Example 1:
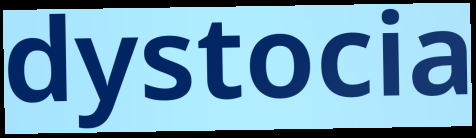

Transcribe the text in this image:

dystocia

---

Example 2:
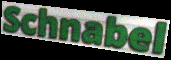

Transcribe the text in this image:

Schnabel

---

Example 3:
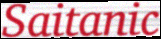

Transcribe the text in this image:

Saitanic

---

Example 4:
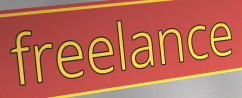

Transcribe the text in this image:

freelance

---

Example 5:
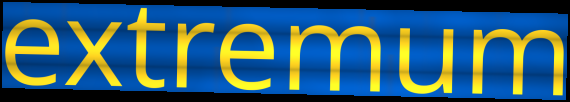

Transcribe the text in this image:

extremum